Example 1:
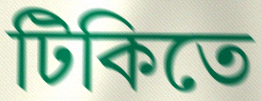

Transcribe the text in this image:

টিকিতে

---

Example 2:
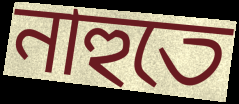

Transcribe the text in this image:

নাহুতে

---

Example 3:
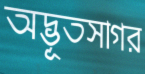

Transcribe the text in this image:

অদ্ভূতসাগর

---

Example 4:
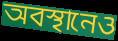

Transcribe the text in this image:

অবস্থানেও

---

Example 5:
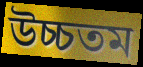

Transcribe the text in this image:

উচ্চতম